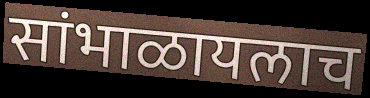
सांभाळायलाच